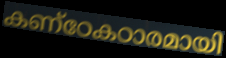
കണ്ഠേകഠാരമായി